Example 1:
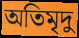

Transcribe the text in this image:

অতিমৃদু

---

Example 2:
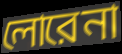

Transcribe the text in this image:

লোরেনা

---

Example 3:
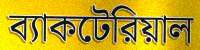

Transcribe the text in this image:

ব্যাকটেরিয়াল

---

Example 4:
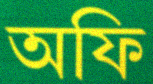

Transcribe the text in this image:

অফি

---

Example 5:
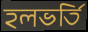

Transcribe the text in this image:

হলভর্তি